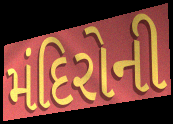
મંદિરોની